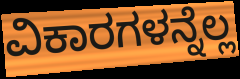
ವಿಕಾರಗಳನ್ನೆಲ್ಲ